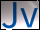
Jv